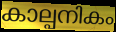
കാല്പനികം